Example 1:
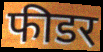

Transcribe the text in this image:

फीडर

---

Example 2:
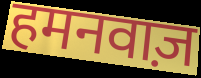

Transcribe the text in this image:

हमनवाज़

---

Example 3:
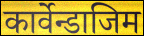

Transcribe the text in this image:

कार्वेन्डाजिम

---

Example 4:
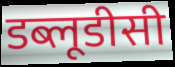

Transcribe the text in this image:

डब्लूडीसी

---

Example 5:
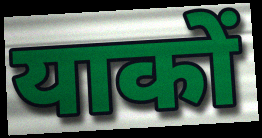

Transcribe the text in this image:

याकों